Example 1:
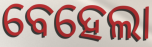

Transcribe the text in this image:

ବେହେଲା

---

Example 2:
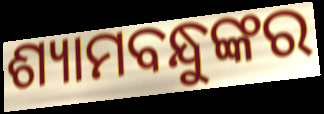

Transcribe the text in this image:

ଶ୍ୟାମବନ୍ଧୁଙ୍କର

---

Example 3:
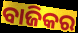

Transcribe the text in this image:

ବାଜିକର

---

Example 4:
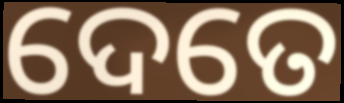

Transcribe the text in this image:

ଦେତେ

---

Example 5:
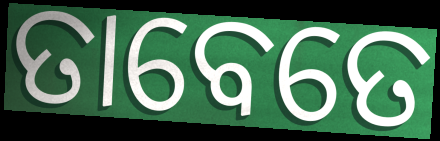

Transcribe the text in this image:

ତାବେତେ